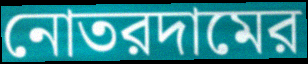
নোতরদামের